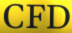
CFD